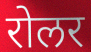
रोलर